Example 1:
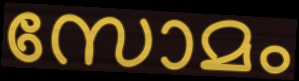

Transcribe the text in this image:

സോമം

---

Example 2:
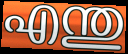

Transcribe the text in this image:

എന്തു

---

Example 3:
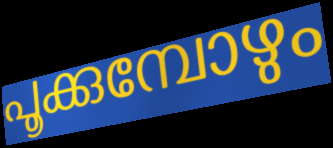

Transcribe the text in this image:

പൂക്കുമ്പോഴും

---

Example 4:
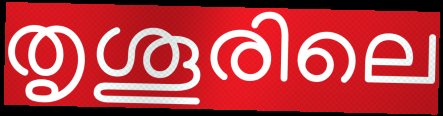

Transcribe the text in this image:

തൃശൂരിലെ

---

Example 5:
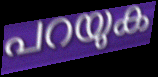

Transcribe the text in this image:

പറയുക